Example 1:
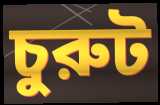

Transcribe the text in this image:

চুরুট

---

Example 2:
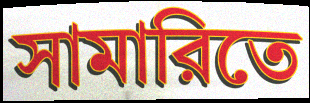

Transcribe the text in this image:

সামারিতে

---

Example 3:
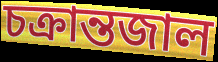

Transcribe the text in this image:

চক্রান্তজাল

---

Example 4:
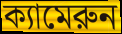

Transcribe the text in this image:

ক্যামেরুন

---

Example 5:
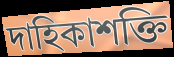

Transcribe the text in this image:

দাহিকাশক্তি